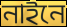
নাইনে